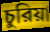
চুরিয়া